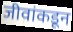
जीवांकडून